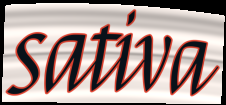
sativa